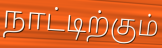
நாட்டிற்கும்